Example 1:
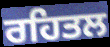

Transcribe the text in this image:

ਰਹਿਤਲ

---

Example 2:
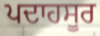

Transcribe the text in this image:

ਪਦਾਹਸੂਰ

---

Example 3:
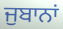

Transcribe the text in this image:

ਜੁਬਾਨਾਂ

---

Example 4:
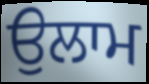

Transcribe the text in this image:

ਉਲਾਮ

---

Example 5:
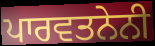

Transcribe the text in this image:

ਪਾਰਵਤਨੇਨੀ